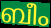
ബീം